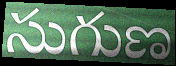
సుగుణ